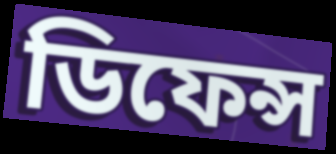
ডিফেন্স